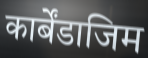
कार्बेंडाजिम